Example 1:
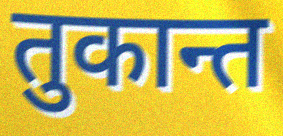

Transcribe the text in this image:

तुकान्त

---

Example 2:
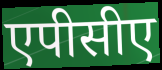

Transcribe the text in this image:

एपीसीए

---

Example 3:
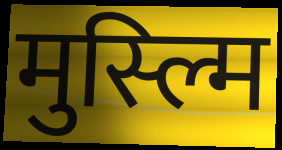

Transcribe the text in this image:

मुस्ल्मि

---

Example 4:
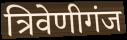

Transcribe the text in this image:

त्रिवेणीगंज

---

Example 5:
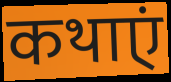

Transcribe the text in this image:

कथाएं